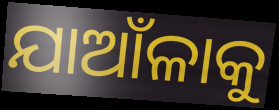
ଯାଆଁଳାକୁ